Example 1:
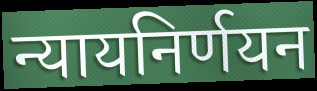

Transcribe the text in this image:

न्यायनिर्णयन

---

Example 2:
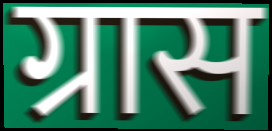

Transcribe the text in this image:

ग्रास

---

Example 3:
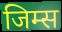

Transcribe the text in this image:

जिम्स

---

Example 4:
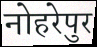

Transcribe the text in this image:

नोहरेपुर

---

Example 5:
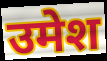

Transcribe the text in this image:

उमेश